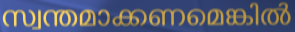
സ്വന്തമാക്കണമെങ്കിൽ